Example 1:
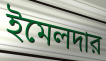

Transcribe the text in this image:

ইমেলদার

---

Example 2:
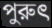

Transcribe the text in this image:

পুরুৎ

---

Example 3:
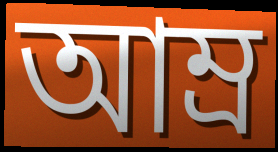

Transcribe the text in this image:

আম্র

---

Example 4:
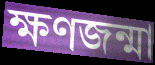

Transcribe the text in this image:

ক্ষণজন্মা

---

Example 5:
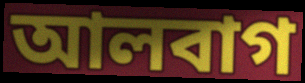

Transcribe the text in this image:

আলবাগ